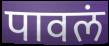
पावलं